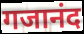
गजानंद